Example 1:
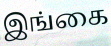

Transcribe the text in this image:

இங்கை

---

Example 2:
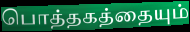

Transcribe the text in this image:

பொத்தகத்தையும்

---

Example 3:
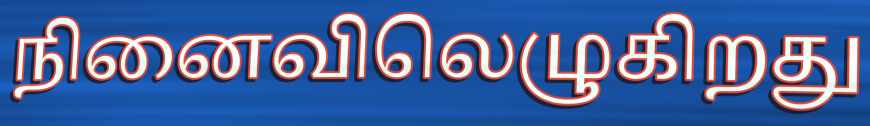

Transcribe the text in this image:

நினைவிலெழுகிறது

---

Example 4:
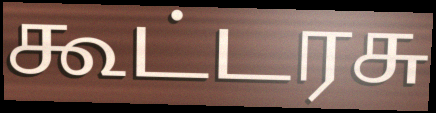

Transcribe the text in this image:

கூட்டரசு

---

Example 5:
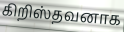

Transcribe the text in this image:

கிறிஸ்தவனாக